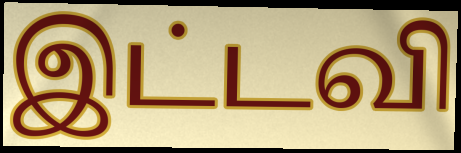
இட்டவி